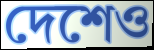
দেশেও